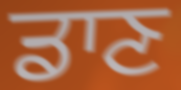
ਡਾਣ